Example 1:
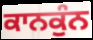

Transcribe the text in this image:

ਕਾਨਕੁੰਨ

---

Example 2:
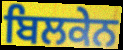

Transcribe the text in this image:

ਬਿਲਕੇਨ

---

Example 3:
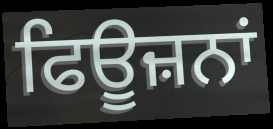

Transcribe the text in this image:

ਫਿਊਜ਼ਨਾਂ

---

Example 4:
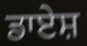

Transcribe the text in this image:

ਡਾਏਸ਼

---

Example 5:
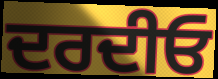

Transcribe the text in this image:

ਦਰਦੀਓ